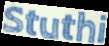
Stuthi